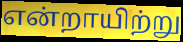
என்றாயிற்று